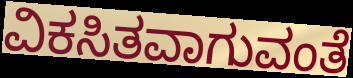
ವಿಕಸಿತವಾಗುವಂತೆ